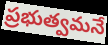
ప్రభుత్వమనే